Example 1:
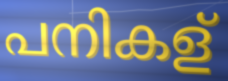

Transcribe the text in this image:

പനികള്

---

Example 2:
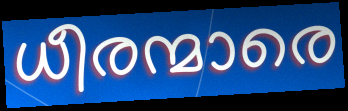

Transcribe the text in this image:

ധീരന്മാരെ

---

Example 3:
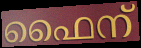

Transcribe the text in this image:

ഫൈന്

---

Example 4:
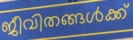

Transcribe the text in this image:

ജീവിതങ്ങൾക്ക്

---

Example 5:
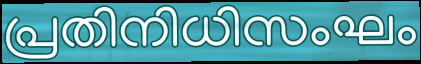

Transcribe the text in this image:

പ്രതിനിധിസംഘം